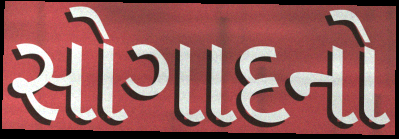
સોગાદનો